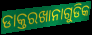
ଡାକ୍ତରଖାନାଗୁଡିକ